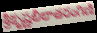
శ్రీకృష్ణలీలాతరంగిణి